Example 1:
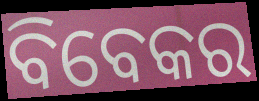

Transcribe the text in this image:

ବିବେକର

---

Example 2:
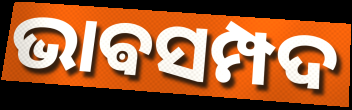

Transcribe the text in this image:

ଭାଵସମ୍ପଦ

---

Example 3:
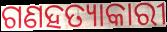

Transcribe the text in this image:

ଗଣହତ୍ୟାକାରୀ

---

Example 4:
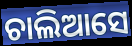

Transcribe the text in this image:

ଚାଲିଆସେ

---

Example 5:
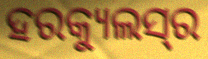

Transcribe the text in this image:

ହରକ୍ୟୁଲସ୍‍ର